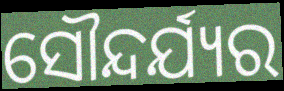
ସୌନ୍ଦର୍ଯ୍ୟର